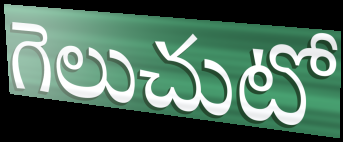
గెలుచుటో